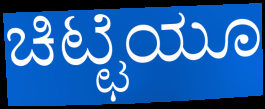
ಚಿಟ್ಟೆಯೂ